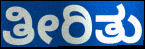
ತೀರಿತು